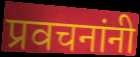
प्रवचनांनी